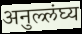
अनुल्लंघ्य